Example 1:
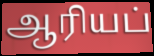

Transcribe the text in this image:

ஆரியப்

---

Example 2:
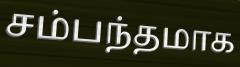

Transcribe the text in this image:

சம்பந்தமாக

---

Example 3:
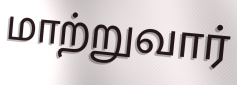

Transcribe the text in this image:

மாற்றுவார்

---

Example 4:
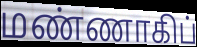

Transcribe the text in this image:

மண்ணாகிப்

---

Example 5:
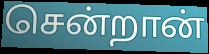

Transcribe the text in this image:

சென்றான்